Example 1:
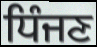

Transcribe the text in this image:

ਧਿੰਜਣ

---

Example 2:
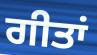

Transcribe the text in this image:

ਗੀਤਾਂ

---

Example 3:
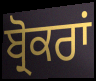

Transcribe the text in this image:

ਬ੍ਰੋਕਰਾਂ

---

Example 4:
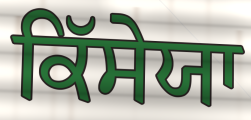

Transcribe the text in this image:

ਕਿੱਸੇਯਾ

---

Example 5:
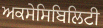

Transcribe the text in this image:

ਅਕਸੇਸਿਬਿਲਿਟੀ